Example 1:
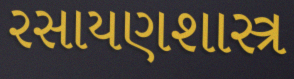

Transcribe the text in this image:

રસાયણશાસ્ત્ર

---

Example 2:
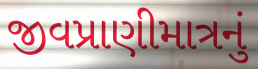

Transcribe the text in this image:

જીવપ્રાણીમાત્રનું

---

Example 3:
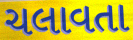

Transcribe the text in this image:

ચલાવતા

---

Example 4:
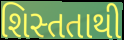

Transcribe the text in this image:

શિસ્તતાથી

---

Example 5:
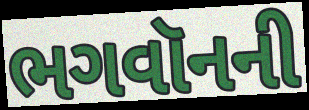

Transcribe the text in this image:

ભગવૉનની